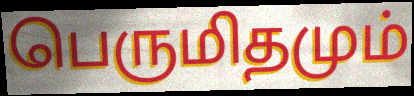
பெருமிதமும்